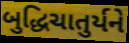
બુદ્ધિચાતુર્યને